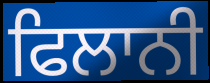
ਫਿਲਾਨੀ